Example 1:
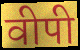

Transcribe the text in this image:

वीपी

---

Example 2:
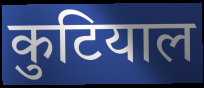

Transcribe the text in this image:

कुटियाल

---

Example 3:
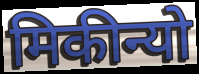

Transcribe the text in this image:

मिकीन्यो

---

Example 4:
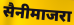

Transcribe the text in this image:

सैनीमाजरा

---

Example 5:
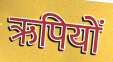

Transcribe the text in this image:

ऋपियों